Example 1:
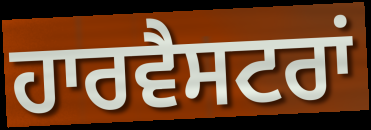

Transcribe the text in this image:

ਹਾਰਵੈਸਟਰਾਂ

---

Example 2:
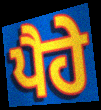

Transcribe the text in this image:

ਪੈਹੇ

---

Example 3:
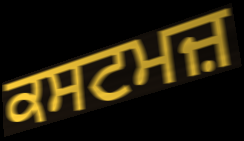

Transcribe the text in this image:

ਕਸਟਮਜ਼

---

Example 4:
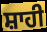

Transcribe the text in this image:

ਸ਼ਾਹੀ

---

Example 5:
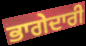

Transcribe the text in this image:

ਭਾਗੇਦਾਰੀ